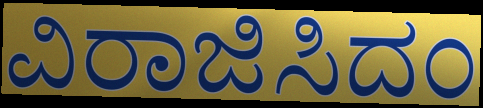
ವಿರಾಜಿಸಿದಂ